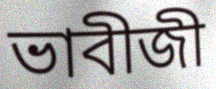
ভাবীজী